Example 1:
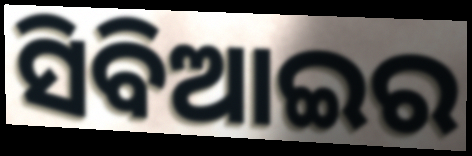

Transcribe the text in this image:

ସିବିଆଇର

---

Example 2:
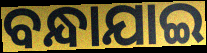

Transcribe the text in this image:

ବନ୍ଧାଯାଇ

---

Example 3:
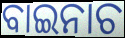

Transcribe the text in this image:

ବାଇନାଚ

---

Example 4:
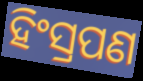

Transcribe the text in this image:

ହିଂସ୍ରପଣ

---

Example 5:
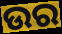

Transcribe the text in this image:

ଉର